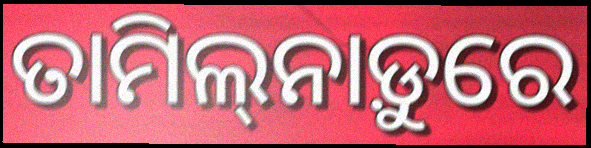
ତାମିଲ୍‌ନାଡ଼ୁରେ